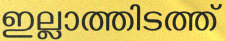
ഇല്ലാത്തിടത്ത്